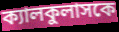
ক্যালকুলাসকে